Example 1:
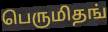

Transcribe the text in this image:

பெருமிதங்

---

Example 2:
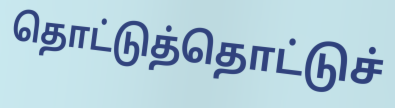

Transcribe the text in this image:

தொட்டுத்தொட்டுச்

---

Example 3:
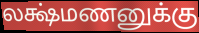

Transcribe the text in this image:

லக்ஷ்மணனுக்கு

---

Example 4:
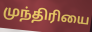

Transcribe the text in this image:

முந்திரியை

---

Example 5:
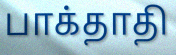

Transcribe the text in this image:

பாக்தாதி